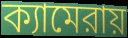
ক্যামেরায়